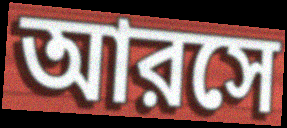
আরসে